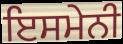
ਇਸਮੇਨੀ